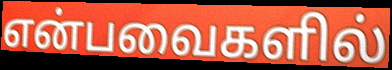
என்பவைகளில்